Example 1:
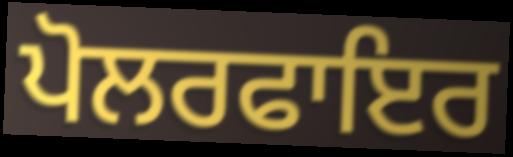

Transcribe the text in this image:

ਪੋਲਰਫਾਇਰ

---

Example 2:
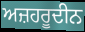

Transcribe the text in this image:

ਅਜ਼ਹਰੂਦੀਨ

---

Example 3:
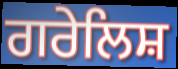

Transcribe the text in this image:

ਗਰੇਲਿਸ਼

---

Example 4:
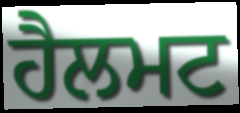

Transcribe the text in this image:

ਹੈਲਮਟ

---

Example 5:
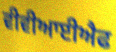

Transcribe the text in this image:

ਵੀਵੀਆਈਐਫ